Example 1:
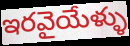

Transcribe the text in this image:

ఇరవైయేళ్ళు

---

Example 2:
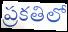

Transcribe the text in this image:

ప్రకతిలో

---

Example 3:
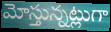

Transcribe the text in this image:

మోస్తున్నట్లుగా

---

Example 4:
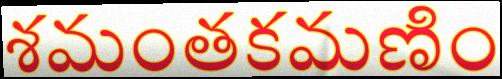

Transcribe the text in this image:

శమంతకమణిం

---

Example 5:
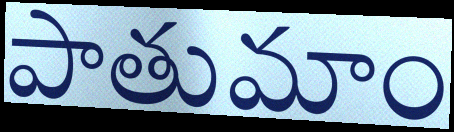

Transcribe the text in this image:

పాతుమాం